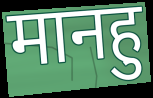
मानहु